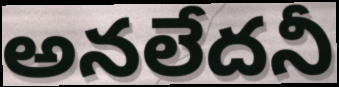
అనలేదనీ